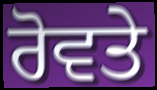
ਰੋਵਤੇ